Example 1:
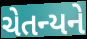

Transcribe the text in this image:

ચેતન્યને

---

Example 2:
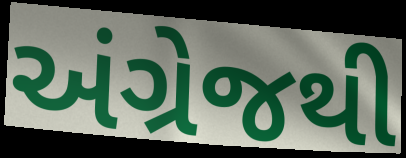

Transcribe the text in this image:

અંગ્રેજથી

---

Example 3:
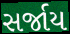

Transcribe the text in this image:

સર્જાય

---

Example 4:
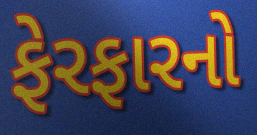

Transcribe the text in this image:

ફેરફારનો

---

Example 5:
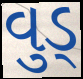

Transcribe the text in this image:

વુડ્